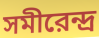
সমীরেন্দ্র